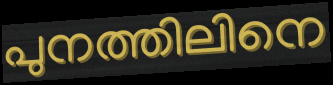
പുനത്തിലിനെ